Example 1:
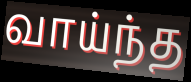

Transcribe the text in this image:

வாய்ந்த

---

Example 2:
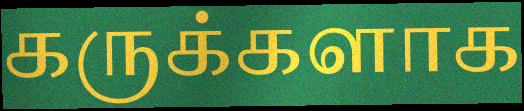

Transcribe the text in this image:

கருக்களாக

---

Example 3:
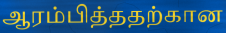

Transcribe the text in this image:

ஆரம்பித்ததற்கான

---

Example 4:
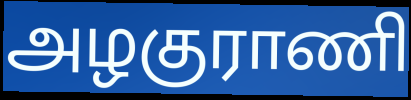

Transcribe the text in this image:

அழகுராணி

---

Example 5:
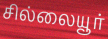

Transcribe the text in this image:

சில்லையூர்